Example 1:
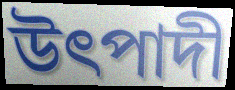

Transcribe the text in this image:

উৎপাদী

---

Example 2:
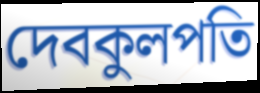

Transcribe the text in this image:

দেবকুলপতি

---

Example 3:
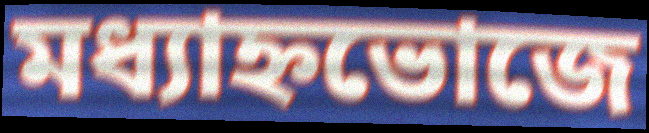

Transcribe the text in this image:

মধ্যাহ্নভোজে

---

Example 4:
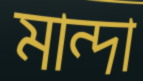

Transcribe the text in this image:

মান্দা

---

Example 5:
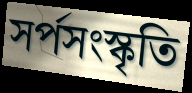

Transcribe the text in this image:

সর্পসংস্কৃতি